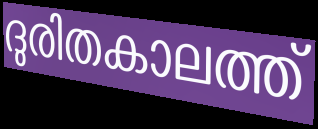
ദുരിതകാലത്ത്